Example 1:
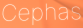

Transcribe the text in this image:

Cephas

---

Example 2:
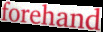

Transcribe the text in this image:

forehand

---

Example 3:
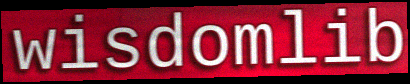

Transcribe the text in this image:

wisdomlib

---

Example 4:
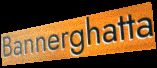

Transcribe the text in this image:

Bannerghatta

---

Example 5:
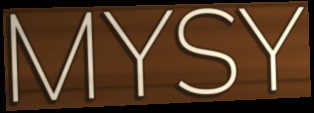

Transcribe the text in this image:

MYSY